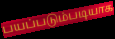
பயப்படும்படியாக